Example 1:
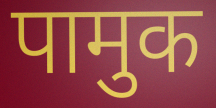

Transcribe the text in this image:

पामुक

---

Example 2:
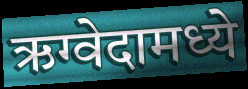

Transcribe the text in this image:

ऋग्वेदामध्ये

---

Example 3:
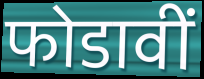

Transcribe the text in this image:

फोडावीं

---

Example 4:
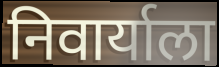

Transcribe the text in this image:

निवार्याला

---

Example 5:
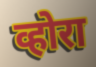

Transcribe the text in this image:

व्होरा